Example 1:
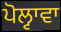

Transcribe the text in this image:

ਪੋਲ੍ਟਾਵਾ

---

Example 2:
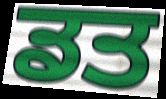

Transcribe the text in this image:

ਡਤ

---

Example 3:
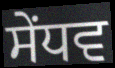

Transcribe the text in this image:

ਸੇਂਧਵ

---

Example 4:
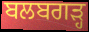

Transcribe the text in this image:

ਬਲਬਗੜ੍ਹ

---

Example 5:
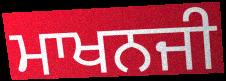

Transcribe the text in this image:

ਮਾਖਨਜੀ